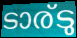
ടാര്ടു